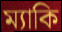
ম্যাকি